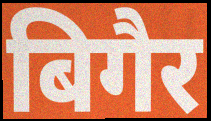
बिगैर